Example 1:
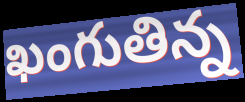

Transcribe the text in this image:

ఖంగుతిన్న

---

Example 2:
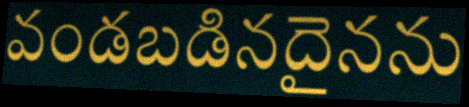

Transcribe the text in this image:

వండబడినదైనను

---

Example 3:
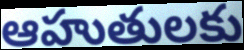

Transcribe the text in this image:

ఆహుతులకు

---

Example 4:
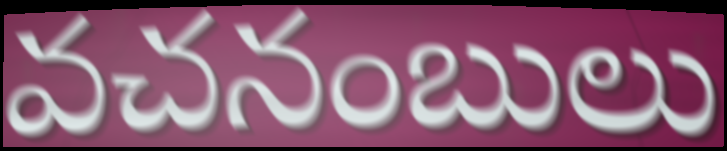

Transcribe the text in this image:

వచనంబులు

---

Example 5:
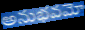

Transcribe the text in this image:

అనుభవమో